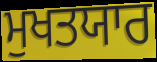
ਮੁਖਤਯਾਰ